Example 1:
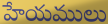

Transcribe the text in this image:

హేయములు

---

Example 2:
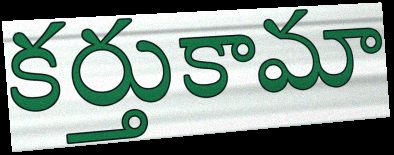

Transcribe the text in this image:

కర్తుకామా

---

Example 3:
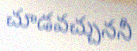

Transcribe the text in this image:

చూడవచ్చుననీ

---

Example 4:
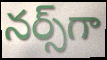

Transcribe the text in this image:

నర్స్‌గా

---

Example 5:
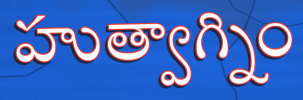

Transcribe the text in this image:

హుత్వాగ్నిం